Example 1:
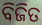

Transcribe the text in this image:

ବିଜିତ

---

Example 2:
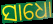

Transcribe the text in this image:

ସାଧୋ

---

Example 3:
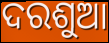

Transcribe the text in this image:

ଦରଶୁଆ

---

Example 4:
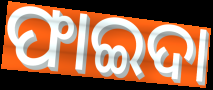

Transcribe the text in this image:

ଫାଇଦା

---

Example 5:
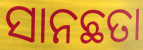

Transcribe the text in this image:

ସାନଛତା